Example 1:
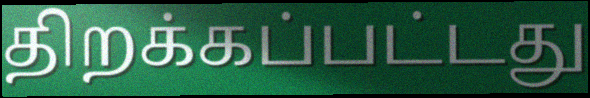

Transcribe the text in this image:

திறக்கப்பட்டது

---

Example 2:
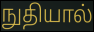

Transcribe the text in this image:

நுதியால்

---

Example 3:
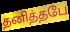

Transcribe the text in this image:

தனித்தபே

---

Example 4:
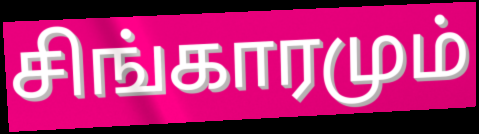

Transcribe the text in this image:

சிங்காரமும்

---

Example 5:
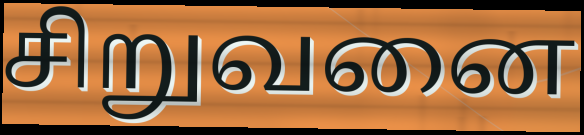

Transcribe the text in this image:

சிறுவனை